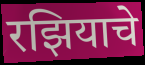
रझियाचे